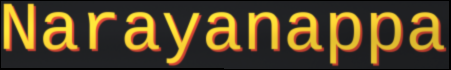
Narayanappa